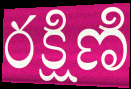
రక్షిణి